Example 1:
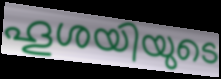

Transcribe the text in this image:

ഹൂശയിയുടെ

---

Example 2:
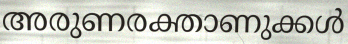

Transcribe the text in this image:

അരുണരക്താണുക്കൾ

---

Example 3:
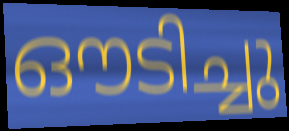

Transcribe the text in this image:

ഔടിച്ചു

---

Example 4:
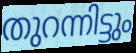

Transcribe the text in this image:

തുറന്നിട്ടും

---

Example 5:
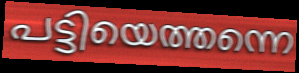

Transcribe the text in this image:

പട്ടിയെത്തന്നെ